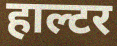
हाल्टर